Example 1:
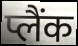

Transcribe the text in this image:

प्लैंक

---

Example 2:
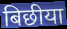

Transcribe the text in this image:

बिछीया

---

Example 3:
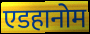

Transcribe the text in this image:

एडहानोम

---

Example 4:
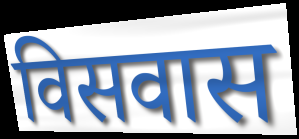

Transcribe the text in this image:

विसवास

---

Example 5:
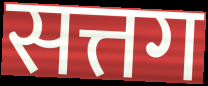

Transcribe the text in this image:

सत्तग